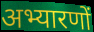
अभ्यारणों